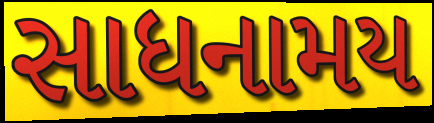
સાધનામય